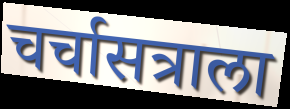
चर्चासत्राला